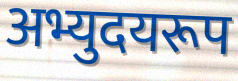
अभ्युदयरूप